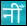
नीँ